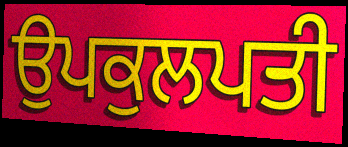
ਉਪਕੁਲਪਤੀ